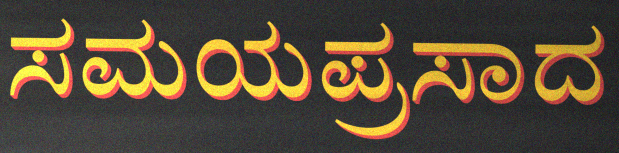
ಸಮಯಪ್ರಸಾದ